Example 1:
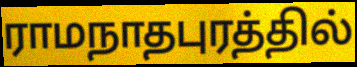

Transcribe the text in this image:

ராமநாதபுரத்தில்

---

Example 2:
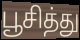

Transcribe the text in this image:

பூசித்து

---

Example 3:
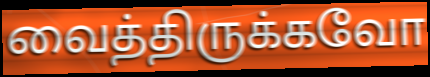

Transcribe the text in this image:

வைத்திருக்கவோ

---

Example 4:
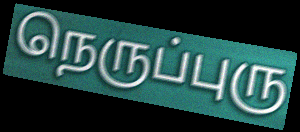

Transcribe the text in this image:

நெருப்புரு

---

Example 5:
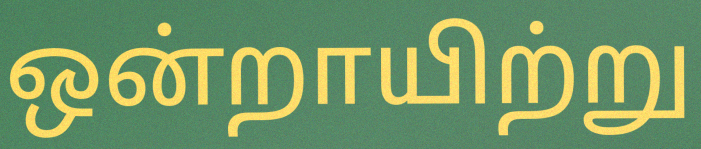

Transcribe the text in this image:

ஒன்றாயிற்று